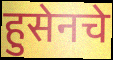
हुसेनचे